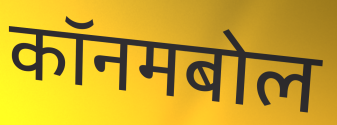
कॉनमबोल